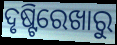
ଦୃଷ୍ଟିରେଖାରୁ